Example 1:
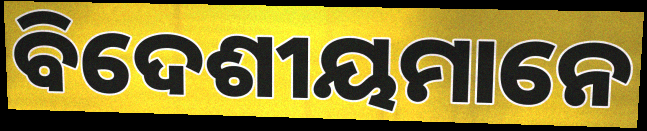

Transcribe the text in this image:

ବିଦେଶୀୟମାନେ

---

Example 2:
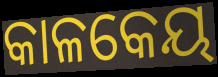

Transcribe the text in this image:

କାଳକେୟ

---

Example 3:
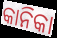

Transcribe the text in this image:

କାନିକା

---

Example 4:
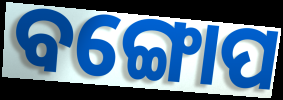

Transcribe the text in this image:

ବଙ୍ଗୋପ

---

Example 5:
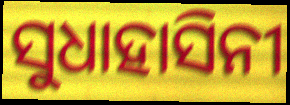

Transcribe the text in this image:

ସୁଧାହାସିନୀ